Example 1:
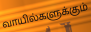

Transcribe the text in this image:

வாயில்களுக்கும்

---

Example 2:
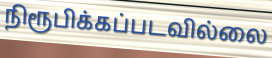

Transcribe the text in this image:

நிரூபிக்கப்படவில்லை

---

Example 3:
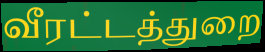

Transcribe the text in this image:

வீரட்டத்துறை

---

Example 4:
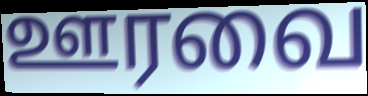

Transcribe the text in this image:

ஊரவை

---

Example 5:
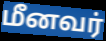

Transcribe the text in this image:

மீனவர்